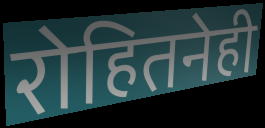
रोहितनेही